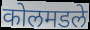
कोलमडले